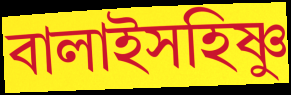
বালাইসহিষ্ণু